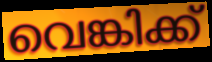
വെങ്കിക്ക്